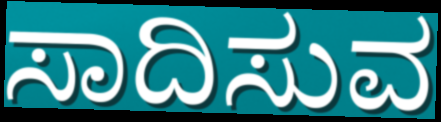
ಸಾದಿಸುವ